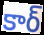
కార్